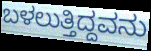
ಬಳಲುತ್ತಿದ್ದವನು